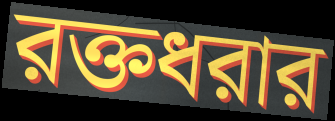
রক্তধরার